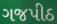
ગજપીઠ